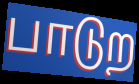
பாடுற